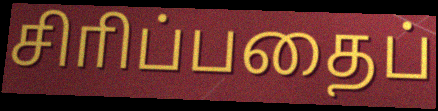
சிரிப்பதைப்